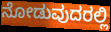
ನೋಡುವುದರಲ್ಲಿ